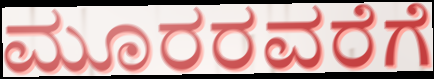
ಮೂರರವರೆಗೆ